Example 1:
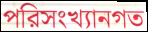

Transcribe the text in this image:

পরিসংখ্যানগত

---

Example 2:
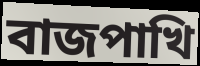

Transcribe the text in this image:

বাজপাখি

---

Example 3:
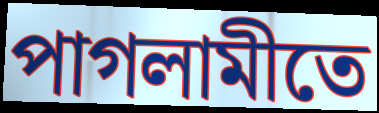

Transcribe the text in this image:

পাগলামীতে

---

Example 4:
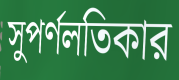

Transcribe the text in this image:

সুপর্ণলতিকার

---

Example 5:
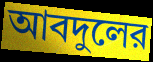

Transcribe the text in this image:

আবদুলের